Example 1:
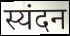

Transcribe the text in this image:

स्यंदन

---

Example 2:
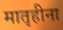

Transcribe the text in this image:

मातृहीना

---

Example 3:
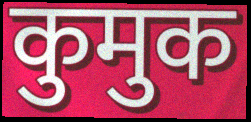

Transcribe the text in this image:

कुमुक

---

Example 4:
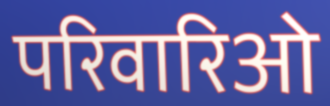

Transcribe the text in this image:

परिवारिओ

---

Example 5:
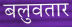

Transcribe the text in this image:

बलुवतार